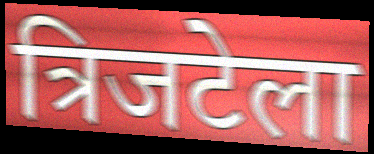
त्रिजटेला